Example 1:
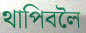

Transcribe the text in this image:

থাপিবলৈ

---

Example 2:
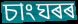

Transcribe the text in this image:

চাংঘৰৰ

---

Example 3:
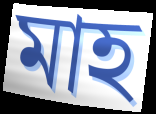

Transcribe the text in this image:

মাহ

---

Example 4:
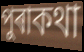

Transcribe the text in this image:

পুৰাকথা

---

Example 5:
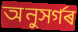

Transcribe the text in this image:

অনুসৰ্গৰ